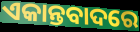
ଏକାନ୍ତବାଦରେ